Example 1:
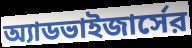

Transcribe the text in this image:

অ্যাডভাইজার্সের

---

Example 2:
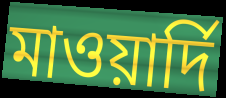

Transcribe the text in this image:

মাওয়ার্দি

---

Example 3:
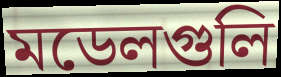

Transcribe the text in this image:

মডেলগুলি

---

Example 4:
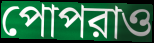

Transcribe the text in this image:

পোপরাও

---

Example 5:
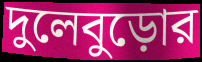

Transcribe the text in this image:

দুলেবুড়োর